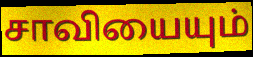
சாவியையும்